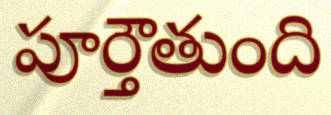
పూర్తౌతుంది